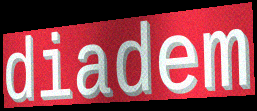
diadem